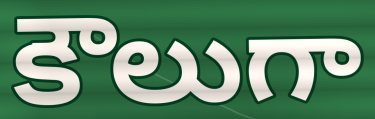
కౌలుగా